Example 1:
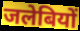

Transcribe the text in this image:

जलेबियों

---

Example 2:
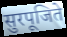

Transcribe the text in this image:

सुरपूजिते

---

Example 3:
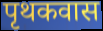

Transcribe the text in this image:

पृथकवास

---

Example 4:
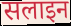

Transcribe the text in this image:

सलाइन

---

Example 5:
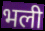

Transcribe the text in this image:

भली